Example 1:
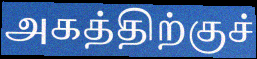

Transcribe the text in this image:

அகத்திற்குச்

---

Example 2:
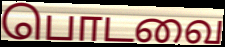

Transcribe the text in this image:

பொடவை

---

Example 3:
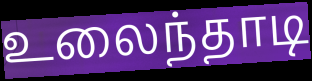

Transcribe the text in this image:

உலைந்தாடி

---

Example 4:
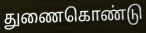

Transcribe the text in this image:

துணைகொண்டு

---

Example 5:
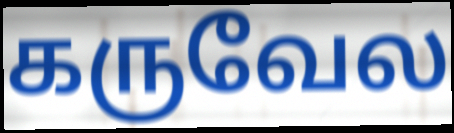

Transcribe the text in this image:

கருவேல